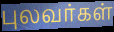
புலவர்கள்